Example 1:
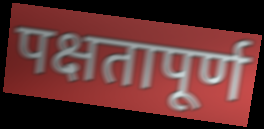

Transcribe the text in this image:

पक्षतापूर्ण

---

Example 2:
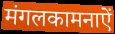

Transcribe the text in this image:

मंगलकामनाऐं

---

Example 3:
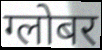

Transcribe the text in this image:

ग्लोबर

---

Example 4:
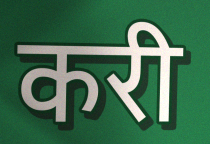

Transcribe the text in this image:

करी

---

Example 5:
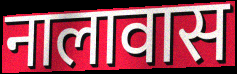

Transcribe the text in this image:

नालावास